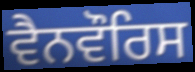
ਵੈਨਵੌਰਿਸ